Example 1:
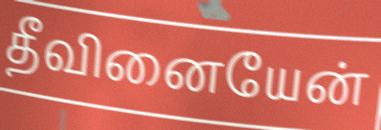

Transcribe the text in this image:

தீவினையேன்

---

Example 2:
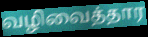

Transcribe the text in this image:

வழிவைத்தார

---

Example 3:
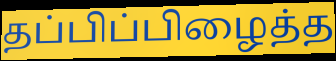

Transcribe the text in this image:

தப்பிப்பிழைத்த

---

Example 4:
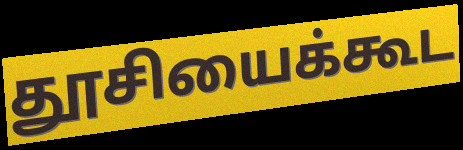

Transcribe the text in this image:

தூசியைக்கூட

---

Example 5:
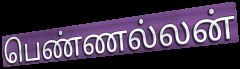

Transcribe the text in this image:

பெண்ணல்லன்